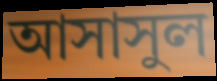
আসাসুল